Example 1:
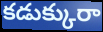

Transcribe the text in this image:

కడుక్కురా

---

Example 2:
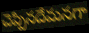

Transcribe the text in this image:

చెప్పినదేమనగా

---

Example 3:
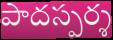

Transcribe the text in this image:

పాదస్పర్శ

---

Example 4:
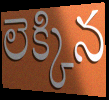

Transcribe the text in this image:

లెక్కిన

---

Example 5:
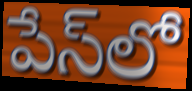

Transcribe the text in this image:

పేస్‌లో